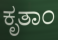
ಕೃತಾಂ